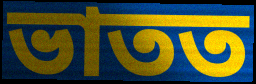
ভাতত